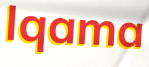
Iqama